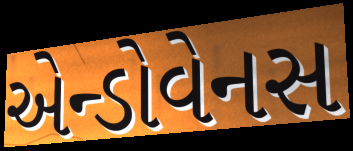
એન્ડોવેનસ